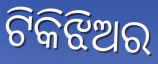
ଟିକିଝିଅର